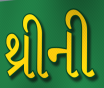
થ્રીની